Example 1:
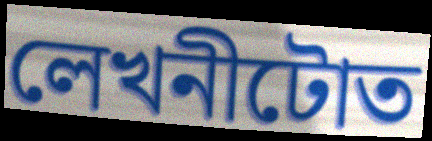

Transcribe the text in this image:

লেখনীটোত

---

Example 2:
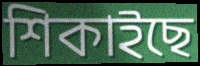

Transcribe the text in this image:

শিকাইছে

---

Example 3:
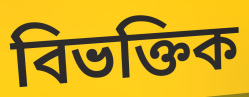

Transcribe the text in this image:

বিভক্তিক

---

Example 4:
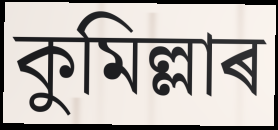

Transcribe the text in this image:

কুমিল্লাৰ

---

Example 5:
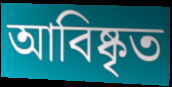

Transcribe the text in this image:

আবিষ্কৃত